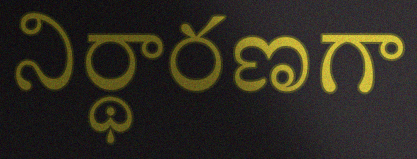
నిర్థారణగా